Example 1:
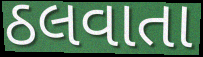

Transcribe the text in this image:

ઠલવાતા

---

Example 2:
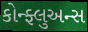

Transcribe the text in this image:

કોન્ફ્લુઅન્સ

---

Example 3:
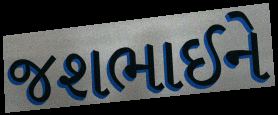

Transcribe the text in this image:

જશભાઈને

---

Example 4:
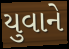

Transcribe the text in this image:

યુવાને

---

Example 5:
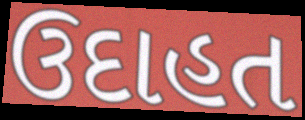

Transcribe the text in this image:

ઉદાહત